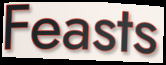
Feasts